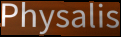
Physalis